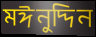
মঈনুদ্দিন